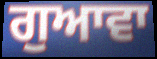
ਗੁਆਵਾ